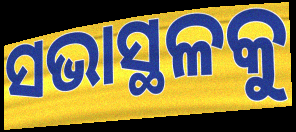
ସଭାସ୍ଥଳକୁ